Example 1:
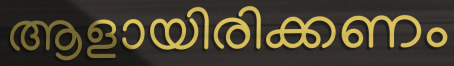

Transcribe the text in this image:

ആളായിരിക്കണം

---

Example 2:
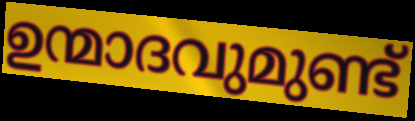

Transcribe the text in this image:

ഉന്മാദവുമുണ്ട്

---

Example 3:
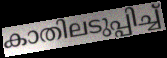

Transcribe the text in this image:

കാതിലടുപ്പിച്ച്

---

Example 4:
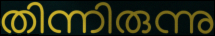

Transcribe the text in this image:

തിന്നിരുന്നു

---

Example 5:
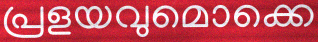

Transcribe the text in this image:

പ്രളയവുമൊക്കെ